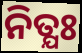
ନିତ୍ଯଃ